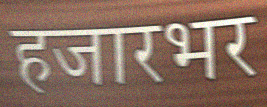
हजारभर